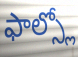
ఫాల్స్లో